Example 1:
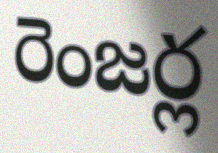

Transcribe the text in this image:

రెంజర్ల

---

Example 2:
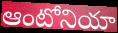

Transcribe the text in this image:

ఆంటోనియా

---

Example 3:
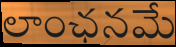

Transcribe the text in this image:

లాంఛనమే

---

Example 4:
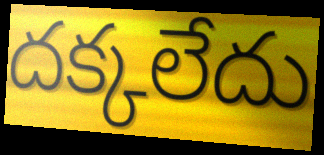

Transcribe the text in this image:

దక్కలేదు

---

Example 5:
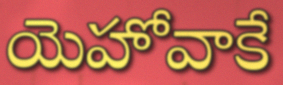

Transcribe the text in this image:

యెహోవాకే